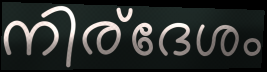
നിര്ദേശം